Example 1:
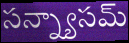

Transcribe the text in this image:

సన్న్యాసమ్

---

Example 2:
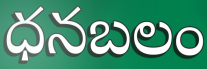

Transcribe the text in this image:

ధనబలం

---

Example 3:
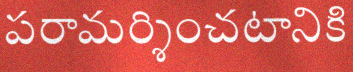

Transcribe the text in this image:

పరామర్శించటానికి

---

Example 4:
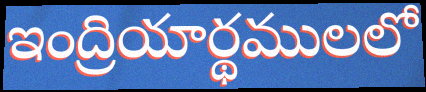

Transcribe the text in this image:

ఇంద్రియార్థములలో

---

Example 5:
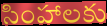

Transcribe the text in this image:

సింహాలకు